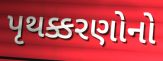
પૃથક્કરણોનો